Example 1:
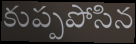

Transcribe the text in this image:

కుప్పపోసిన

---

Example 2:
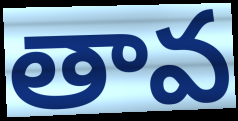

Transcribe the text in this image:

తావ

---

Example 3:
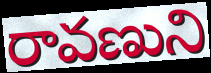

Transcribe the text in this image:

రావణుని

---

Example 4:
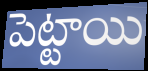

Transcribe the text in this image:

పెట్టాయి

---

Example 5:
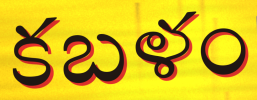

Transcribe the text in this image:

కబళం